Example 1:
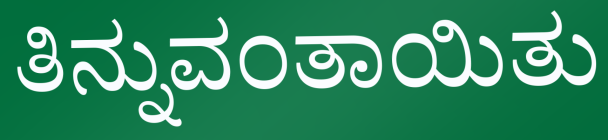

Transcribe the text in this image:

ತಿನ್ನುವಂತಾಯಿತು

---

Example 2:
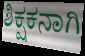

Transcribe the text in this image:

ಶಿಕ್ಷಕನಾಗಿ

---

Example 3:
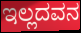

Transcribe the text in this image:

ಇಲ್ಲದವನ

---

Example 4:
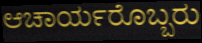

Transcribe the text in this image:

ಆಚಾರ್ಯರೊಬ್ಬರು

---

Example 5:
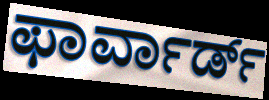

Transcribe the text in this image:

ಫಾರ್ವಾರ್ಡ್